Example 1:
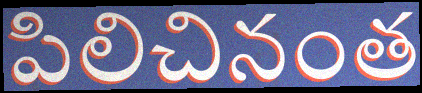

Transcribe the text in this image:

పిలిచినంత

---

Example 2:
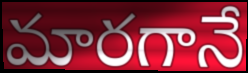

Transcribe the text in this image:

మారగానే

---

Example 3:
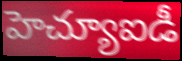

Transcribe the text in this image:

హెచ్యూఐడీ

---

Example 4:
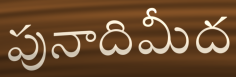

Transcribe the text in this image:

పునాదిమీద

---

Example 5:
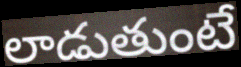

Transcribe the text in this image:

లాడుతుంటే